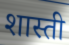
शास्ती